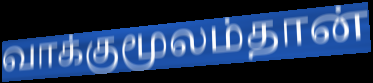
வாக்குமூலம்தான்